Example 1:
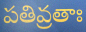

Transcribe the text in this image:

పతివ్రతాః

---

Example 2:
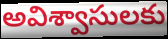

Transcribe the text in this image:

అవిశ్వాసులకు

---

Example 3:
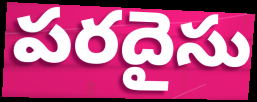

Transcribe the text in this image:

పరదైసు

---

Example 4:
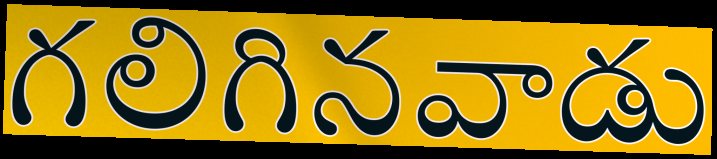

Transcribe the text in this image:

గలిగినవాడు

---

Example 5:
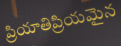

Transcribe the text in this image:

ప్రియాతిప్రియమైన